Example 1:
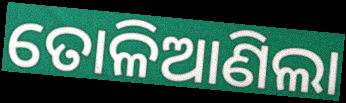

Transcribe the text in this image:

ତୋଳିଆଣିଲା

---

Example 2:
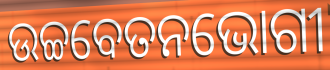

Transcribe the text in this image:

ଉଚ୍ଚବେତନଭୋଗୀ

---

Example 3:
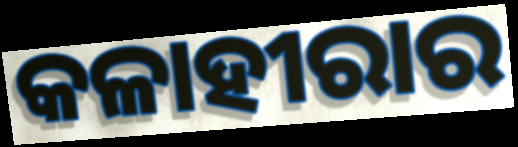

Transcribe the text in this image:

କଳାହୀରାର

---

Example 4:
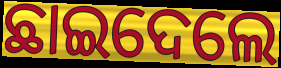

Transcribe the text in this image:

ଛାଇଦେଲେ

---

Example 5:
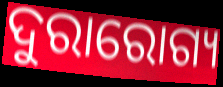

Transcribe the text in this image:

ଦୁରାରୋଗ୍ୟ